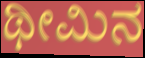
ಥೀಮಿನ